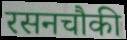
रसनचौकी